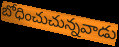
బోధించుచున్నవాడు